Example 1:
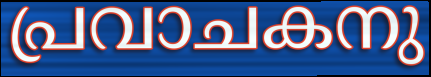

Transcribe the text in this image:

പ്രവാചകനു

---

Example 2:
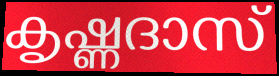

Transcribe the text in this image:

കൃഷ്ണദാസ്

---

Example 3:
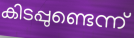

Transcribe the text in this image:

കിടപ്പുണ്ടെന്ന്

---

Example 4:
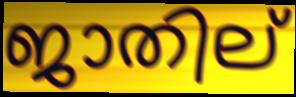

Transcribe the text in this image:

ജാതില്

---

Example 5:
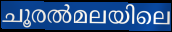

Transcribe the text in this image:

ചൂരൽമലയിലെ